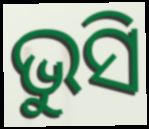
ଭୁସି